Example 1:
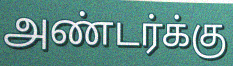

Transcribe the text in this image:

அண்டர்க்கு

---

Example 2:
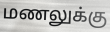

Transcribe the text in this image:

மணலுக்கு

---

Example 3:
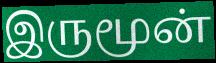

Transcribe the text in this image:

இருமூன்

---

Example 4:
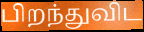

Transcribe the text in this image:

பிறந்துவிட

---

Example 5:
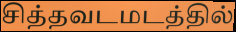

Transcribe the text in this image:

சித்தவடமடத்தில்